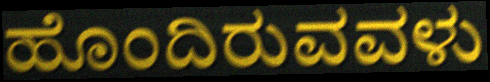
ಹೊಂದಿರುವವಳು